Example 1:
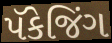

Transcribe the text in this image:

પૅકેજિંગ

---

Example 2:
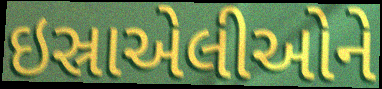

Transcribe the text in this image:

ઇસ્રાએલીઓને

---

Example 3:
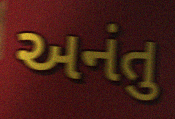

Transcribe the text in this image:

અનંતુ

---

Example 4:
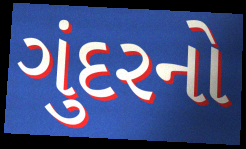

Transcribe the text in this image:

ગુંદરનો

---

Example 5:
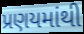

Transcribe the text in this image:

પ્રણયમાંથી